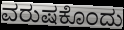
ವರುಷಕೊಂದು